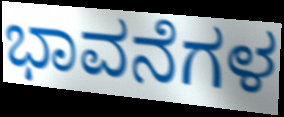
ಭಾವನೆಗಳ